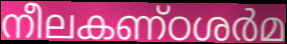
നീലകണ്ഠശർമ